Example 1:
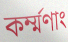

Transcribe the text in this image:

কর্ম্মণাং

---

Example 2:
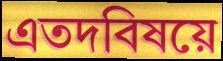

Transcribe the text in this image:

এতদবিষয়ে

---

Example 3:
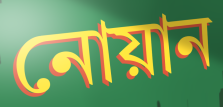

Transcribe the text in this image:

নোয়ান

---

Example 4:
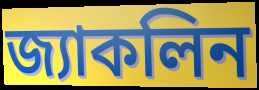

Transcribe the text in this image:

জ্যাকলিন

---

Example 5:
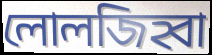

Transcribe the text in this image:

লোলজিহ্বা